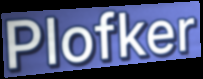
Plofker